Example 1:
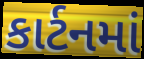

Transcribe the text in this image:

કાર્ટનમાં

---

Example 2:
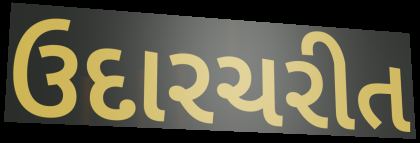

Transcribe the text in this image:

ઉદારચરીત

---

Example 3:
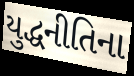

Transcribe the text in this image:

યુદ્ધનીતિના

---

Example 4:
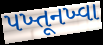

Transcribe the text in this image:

પખ્તૂનખ્વા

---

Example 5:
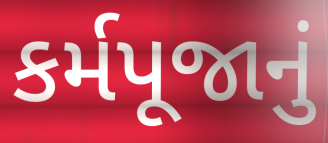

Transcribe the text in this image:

કર્મપૂજાનું